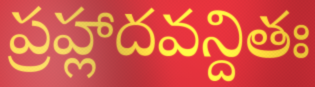
ప్రహ్లాదవన్దితః